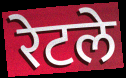
रेटले